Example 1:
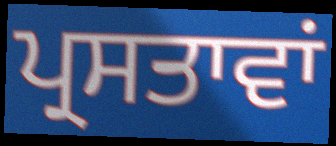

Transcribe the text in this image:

ਪ੍ਰਸਤਾਵਾਂ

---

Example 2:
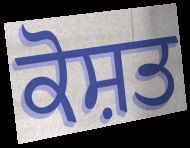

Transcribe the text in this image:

ਕੋਸ਼ਤ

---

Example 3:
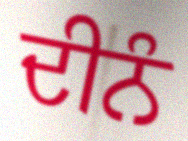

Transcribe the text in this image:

ਦੀਨੰ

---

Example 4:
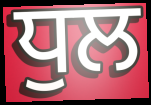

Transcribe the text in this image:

ਧੁਲ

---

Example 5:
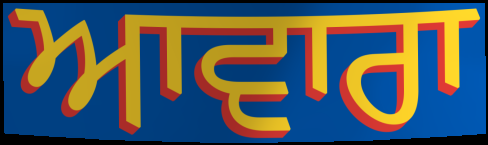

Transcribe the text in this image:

ਆਵਾਰਾ